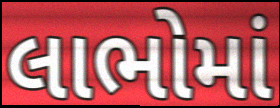
લાભોમાં